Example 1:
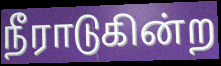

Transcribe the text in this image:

நீராடுகின்ற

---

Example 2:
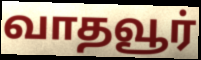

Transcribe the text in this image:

வாதவூர்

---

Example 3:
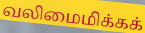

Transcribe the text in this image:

வலிமைமிக்கக்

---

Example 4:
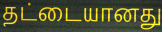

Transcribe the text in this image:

தட்டையானது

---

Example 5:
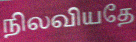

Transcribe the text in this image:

நிலவியதே